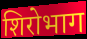
शिरोभाग